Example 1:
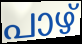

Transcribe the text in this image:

പാഴ്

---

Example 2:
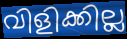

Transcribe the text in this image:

വിളിക്കില്ല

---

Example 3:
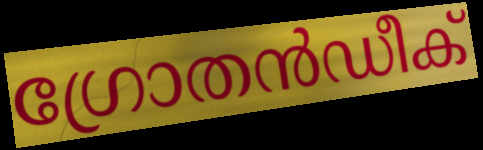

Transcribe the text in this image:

ഗ്രോതൻഡീക്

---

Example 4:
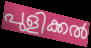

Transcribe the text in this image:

പുളിക്കൽ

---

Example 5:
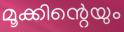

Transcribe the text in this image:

മൂക്കിന്റെയും